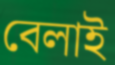
বেলাই